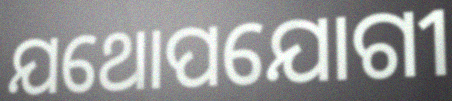
ଯଥୋପଯୋଗୀ